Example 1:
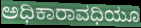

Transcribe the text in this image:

ಅಧಿಕಾರಾವಧಿಯೂ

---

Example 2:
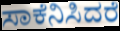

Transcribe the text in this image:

ಸಾಕೆನಿಸಿದರೆ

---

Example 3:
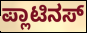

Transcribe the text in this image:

ಪ್ಲಾಟಿನಸ್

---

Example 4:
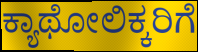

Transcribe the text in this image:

ಕ್ಯಾಥೋಲಿಕ್ಕರಿಗೆ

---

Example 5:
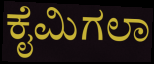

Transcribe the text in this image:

ಕೈಮಿಗಲಾ